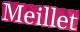
Meillet